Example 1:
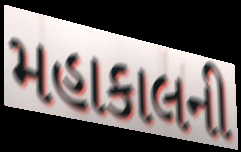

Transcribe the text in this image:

મહાકાલની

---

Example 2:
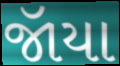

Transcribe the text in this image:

જૉયા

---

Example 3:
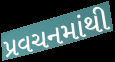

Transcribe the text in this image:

પ્રવચનમાંથી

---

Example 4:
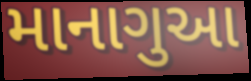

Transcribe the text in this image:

માનાગુઆ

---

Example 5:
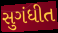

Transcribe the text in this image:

સુગંધીત